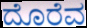
ದೊರೆವ